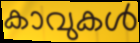
കാവുകൾ